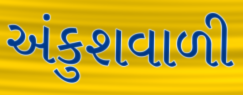
અંકુશવાળી